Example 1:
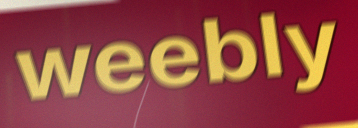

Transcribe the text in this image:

weebly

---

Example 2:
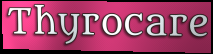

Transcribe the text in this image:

Thyrocare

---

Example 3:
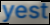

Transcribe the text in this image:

yest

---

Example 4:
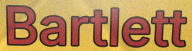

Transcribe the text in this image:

Bartlett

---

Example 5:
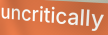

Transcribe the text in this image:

uncritically